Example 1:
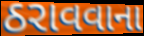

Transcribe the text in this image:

ઠરાવવાના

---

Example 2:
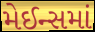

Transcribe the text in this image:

મેઈન્સમાં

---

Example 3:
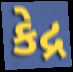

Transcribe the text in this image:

કેદ્ર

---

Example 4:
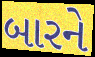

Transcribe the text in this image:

બારને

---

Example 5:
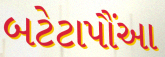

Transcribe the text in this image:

બટેટાપૌંઆ